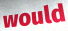
would